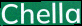
Chella